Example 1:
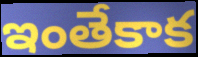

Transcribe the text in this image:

ఇంతేకాక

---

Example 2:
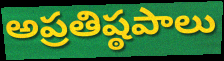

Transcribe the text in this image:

అప్రతిష్ఠపాలు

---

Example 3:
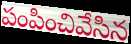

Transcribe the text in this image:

పంపించివేసిన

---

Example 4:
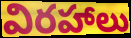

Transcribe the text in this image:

విరహాలు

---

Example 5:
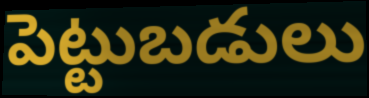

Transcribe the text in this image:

పెట్టుబడులు